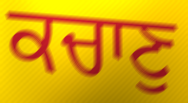
ਕਚਾਣੁ